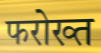
फरोख्‍त